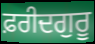
ਫ਼ਰੀਦਗੁਰੂ